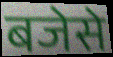
बजेसे